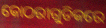
କୋଠରୀଗୁଡିକରେ